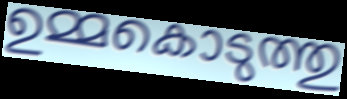
ഉമ്മകൊടുത്തു